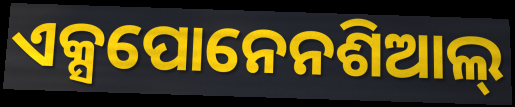
ଏକ୍ସପୋନେନଶିଆଲ୍